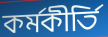
কর্মকীর্তি